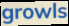
growls